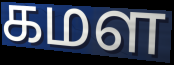
கமள